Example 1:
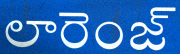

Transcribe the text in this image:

లారెంజ్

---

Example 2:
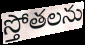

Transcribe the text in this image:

స్తోతలను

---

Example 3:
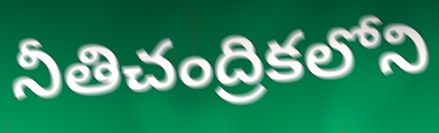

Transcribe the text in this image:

నీతిచంద్రికలోని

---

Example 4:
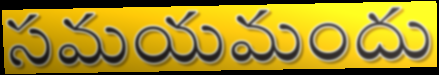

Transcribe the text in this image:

సమయమందు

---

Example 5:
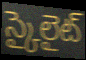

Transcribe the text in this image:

స్కైలైట్